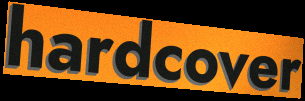
hardcover